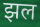
झल